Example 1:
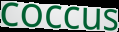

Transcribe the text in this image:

coccus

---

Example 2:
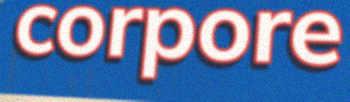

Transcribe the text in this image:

corpore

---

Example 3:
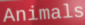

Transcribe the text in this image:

Animals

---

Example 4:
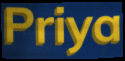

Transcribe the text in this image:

Priya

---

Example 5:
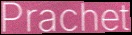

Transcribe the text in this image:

Prachet